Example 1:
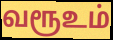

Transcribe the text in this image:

வரூஉம்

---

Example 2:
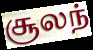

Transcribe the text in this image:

சூலந்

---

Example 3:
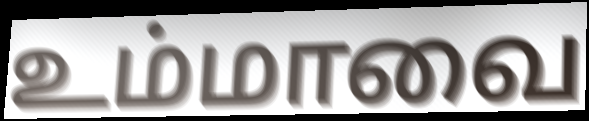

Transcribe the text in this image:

உம்மாவை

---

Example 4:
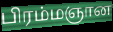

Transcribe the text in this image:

பிரம்மஞான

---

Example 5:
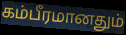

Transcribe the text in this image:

கம்பீரமானதும்